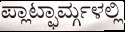
ಪ್ಲಾಟ್ಫಾರ್ಮ್ಗಳಲ್ಲಿ